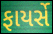
ફાયર્સે